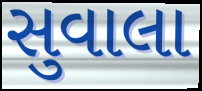
સુવાલા